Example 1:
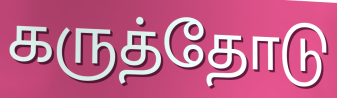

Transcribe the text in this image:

கருத்தோடு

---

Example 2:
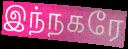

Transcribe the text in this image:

இந்நகரே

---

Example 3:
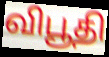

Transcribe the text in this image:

விபூதி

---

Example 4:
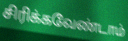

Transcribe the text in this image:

சிரிக்கவேண்டாம்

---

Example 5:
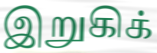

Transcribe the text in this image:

இறுகிக்